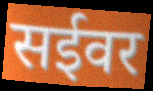
सईवर